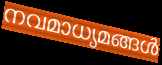
നവമാധ്യമങ്ങൾ